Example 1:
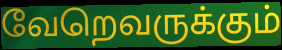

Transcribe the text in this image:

வேறெவருக்கும்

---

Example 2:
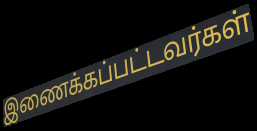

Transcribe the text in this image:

இணைக்கப்பட்டவர்கள்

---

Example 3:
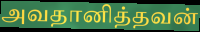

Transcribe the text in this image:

அவதானித்தவன்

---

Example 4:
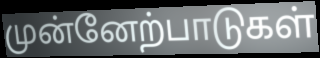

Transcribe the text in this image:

முன்னேற்பாடுகள்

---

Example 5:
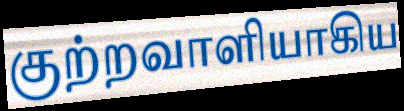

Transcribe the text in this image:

குற்றவாளியாகிய